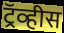
ट्रॅव्हीस